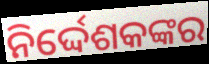
ନିର୍ଦ୍ଦେଶକଙ୍କର